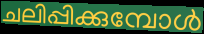
ചലിപ്പിക്കുമ്പോൾ